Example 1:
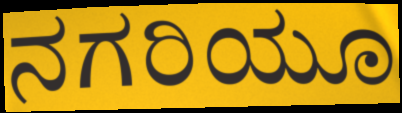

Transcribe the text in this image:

ನಗರಿಯೂ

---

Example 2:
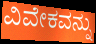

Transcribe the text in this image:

ವಿವೇಕವನ್ನು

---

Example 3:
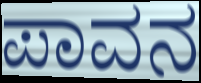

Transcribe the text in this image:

ಪಾವನ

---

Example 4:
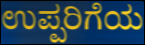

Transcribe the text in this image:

ಉಪ್ಪರಿಗೆಯ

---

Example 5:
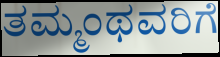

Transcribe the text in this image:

ತಮ್ಮಂಥವರಿಗೆ